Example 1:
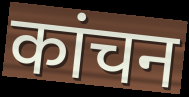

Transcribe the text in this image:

कांचन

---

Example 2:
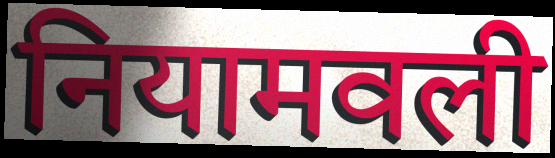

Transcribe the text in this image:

नियामवली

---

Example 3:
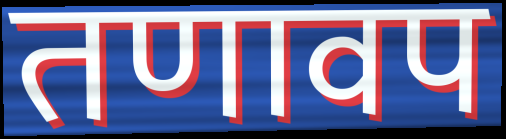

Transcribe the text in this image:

तणावप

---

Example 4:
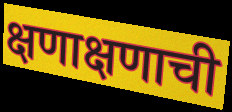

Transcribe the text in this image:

क्षणाक्षणाची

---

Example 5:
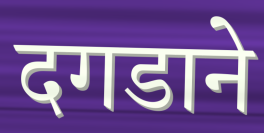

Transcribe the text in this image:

दगडाने